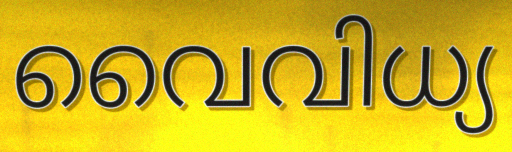
വൈവിധ്യ